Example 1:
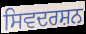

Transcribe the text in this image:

ਸਿਵਦਰਸ਼ਨ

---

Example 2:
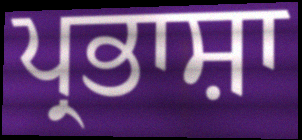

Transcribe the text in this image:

ਪ੍ਰਭਾਸ਼ਾ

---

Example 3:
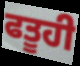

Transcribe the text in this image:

ਫਤੂਹੀ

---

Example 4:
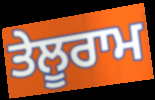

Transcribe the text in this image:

ਤੇਲੂਰਾਮ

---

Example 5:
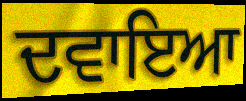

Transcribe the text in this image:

ਦਵਾਇਆ